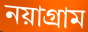
নয়াগ্রাম